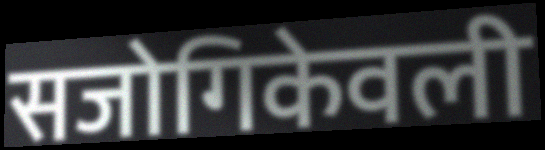
सजोगिकेवली